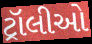
ટ્રૉલીઓ